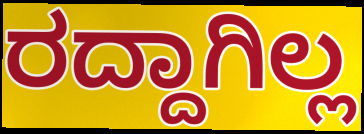
ರದ್ದಾಗಿಲ್ಲ